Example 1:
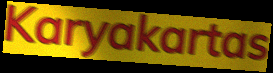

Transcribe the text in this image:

Karyakartas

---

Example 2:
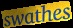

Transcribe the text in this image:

swathes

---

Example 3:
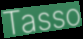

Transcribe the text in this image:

Tasso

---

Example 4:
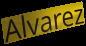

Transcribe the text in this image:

Alvarez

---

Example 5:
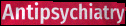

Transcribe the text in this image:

Antipsychiatry